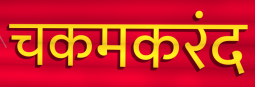
चकमकरंद